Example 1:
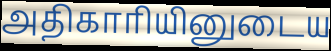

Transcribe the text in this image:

அதிகாரியினுடைய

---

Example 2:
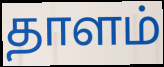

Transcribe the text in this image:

தாளம்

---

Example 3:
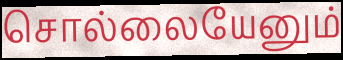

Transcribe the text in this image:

சொல்லையேனும்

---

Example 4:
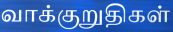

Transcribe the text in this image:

வாக்குறுதிகள்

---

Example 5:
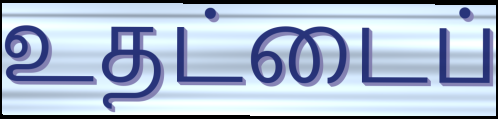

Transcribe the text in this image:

உதட்டைப்